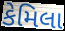
કેમિલા